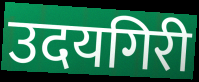
उदयगिरी